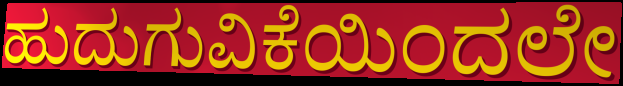
ಹುದುಗುವಿಕೆಯಿಂದಲೇ